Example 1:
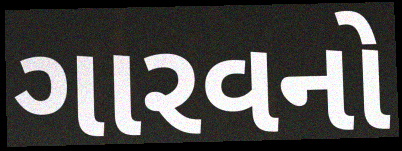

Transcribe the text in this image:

ગારવનો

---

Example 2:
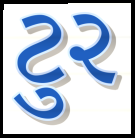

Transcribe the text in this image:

ટુર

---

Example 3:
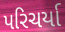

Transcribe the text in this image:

પરિચર્યા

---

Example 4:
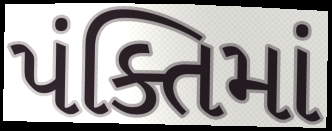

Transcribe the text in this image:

પંક્તિમાં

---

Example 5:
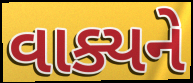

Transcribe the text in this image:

વાક્યને